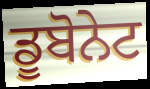
ਡੂਬੋਨੇਟ